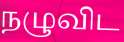
நழுவிட